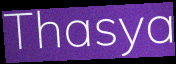
Thasya